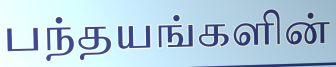
பந்தயங்களின்